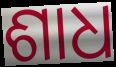
ଶାଧ